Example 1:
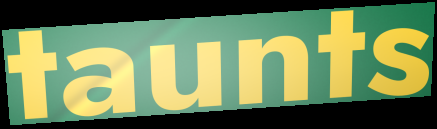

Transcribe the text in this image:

taunts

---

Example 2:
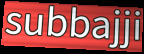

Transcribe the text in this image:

subbajji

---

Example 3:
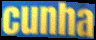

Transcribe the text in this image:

cunha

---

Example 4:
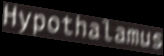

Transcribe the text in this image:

Hypothalamus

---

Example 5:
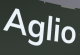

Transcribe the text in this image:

Aglio